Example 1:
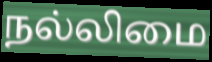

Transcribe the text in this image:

நல்லிமை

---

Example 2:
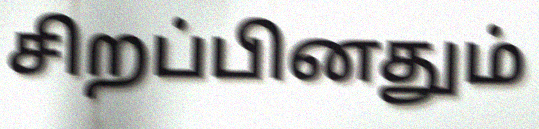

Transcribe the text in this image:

சிறப்பினதும்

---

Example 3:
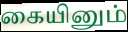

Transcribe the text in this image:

கையினும்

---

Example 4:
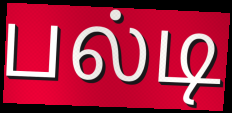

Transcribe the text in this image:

பல்டி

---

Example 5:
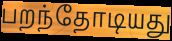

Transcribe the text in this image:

பறந்தோடியது